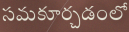
సమకూర్చడంలో